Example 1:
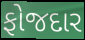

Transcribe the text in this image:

ફોજદાર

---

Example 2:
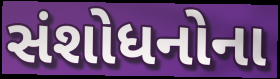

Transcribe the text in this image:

સંશોધનોના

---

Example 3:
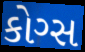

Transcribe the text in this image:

કોગ્સ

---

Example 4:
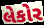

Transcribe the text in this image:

લેકોર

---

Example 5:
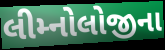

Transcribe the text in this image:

લીમ્નોલોજીના